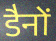
डैनों